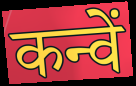
कन्वें